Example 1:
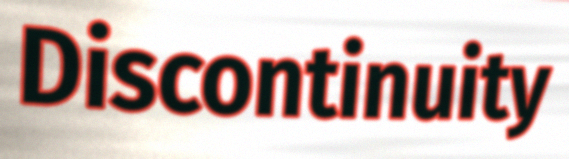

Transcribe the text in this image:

Discontinuity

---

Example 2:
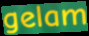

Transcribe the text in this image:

gelam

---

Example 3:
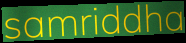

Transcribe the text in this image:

samriddha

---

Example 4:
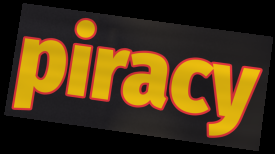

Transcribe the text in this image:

piracy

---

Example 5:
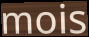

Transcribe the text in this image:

mois